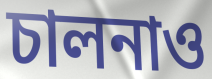
চালনাও